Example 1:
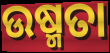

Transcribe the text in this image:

ଉଷ୍ମତା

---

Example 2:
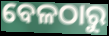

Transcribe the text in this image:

ବେଳଠାରୁ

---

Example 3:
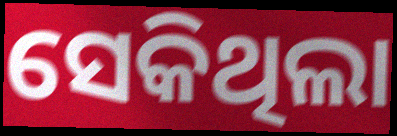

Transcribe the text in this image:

ସେକିଥିଲା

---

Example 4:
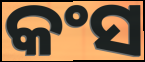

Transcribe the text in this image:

କଂସ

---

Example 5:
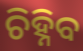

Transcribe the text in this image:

ଚିହ୍ନିବ